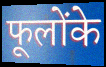
फूलोंके